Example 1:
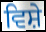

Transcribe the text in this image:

ਵਿਸ਼ੇ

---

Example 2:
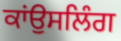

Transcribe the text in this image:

ਕਾਂਉਸਲਿੰਗ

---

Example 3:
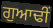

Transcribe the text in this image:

ਗੁਆਢੀਂ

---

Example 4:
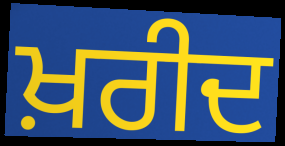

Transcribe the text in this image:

ਖ਼ਰੀਦ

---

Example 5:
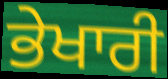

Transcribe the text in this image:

ਭੇਖਾਰੀ